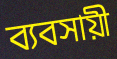
ব্যবসায়ী